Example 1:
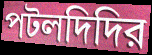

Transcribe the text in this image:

পটলদিদির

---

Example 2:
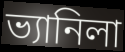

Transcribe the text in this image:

ভ্যানিলা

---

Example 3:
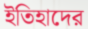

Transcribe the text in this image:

ইতিহাদের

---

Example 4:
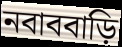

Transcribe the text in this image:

নবাববাড়ি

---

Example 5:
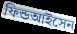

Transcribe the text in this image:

ফিন্ডআইসেন